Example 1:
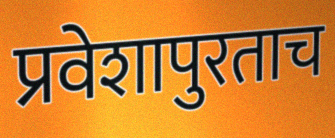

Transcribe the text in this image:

प्रवेशापुरताच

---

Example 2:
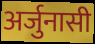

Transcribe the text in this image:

अर्जुनासी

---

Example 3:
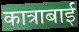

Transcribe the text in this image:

कात्राबाई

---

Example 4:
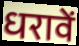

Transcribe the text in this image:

धरावें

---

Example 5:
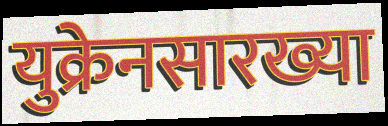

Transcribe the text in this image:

युक्रेनसारख्या